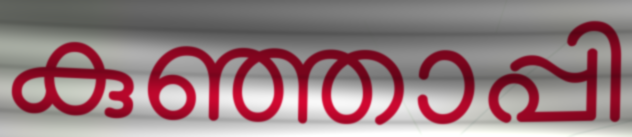
കുഞ്ഞാപ്പി